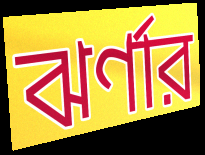
ঝর্ণার